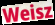
Weisz